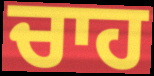
ਚਾਹ